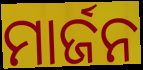
ମାର୍ଜନ